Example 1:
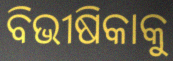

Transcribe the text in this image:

ବିଭୀଷିକାକୁ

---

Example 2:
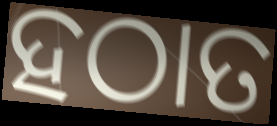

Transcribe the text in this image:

ହଠାତ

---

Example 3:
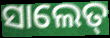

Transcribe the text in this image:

ସାଲେତ୍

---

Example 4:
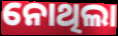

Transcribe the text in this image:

ନୋଥିଲା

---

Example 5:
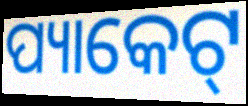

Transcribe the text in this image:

ପ୍ୟାକେଟ୍